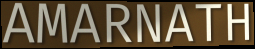
AMARNATH